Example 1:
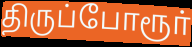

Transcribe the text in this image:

திருப்போரூர்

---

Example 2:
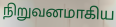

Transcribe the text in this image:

நிறுவனமாகிய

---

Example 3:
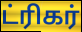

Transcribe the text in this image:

ட்ரிகர்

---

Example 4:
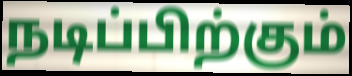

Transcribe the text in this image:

நடிப்பிற்கும்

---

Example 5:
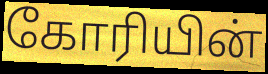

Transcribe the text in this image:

கோரியின்